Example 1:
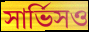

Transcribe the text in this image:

সার্ভিসও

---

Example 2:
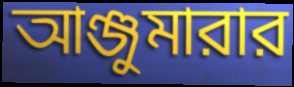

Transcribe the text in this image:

আঞ্জুমারার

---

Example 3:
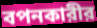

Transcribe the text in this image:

বপনকারীর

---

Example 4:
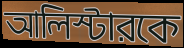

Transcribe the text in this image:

আলিস্টারকে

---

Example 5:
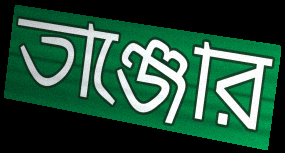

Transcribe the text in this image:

তাঞ্জোর